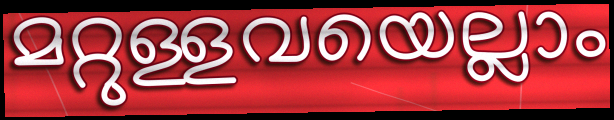
മറ്റുള്ളവയെല്ലാം